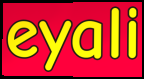
eyali